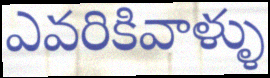
ఎవరికివాళ్ళు